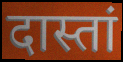
दास्तां